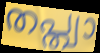
തപ്ത്വാ